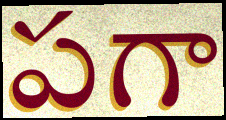
పగా